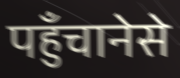
पहुँचानेसे